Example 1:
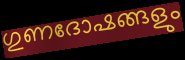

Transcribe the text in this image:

ഗുണദോഷങ്ങളും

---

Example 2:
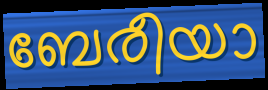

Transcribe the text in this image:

ബേരീയാ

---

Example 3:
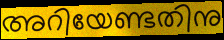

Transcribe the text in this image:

അറിയേണ്ടതിനു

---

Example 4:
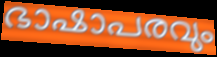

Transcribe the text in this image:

ഭാഷാപരവും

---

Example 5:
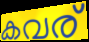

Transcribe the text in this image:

കവര്